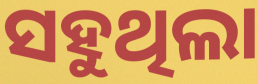
ସହୁଥିଲା